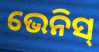
ଭେନିସ୍